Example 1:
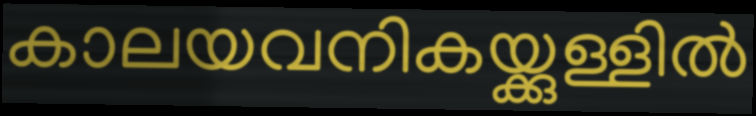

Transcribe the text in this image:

കാലയവനികയ്ക്കുള്ളിൽ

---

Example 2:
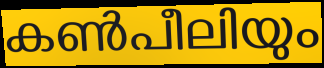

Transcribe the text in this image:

കൺപീലിയും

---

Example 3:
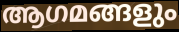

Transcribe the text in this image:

ആഗമങ്ങളും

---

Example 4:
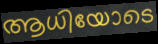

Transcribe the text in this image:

ആധിയോടെ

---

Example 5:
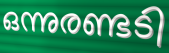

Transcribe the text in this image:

ഒന്നുരണ്ടടി